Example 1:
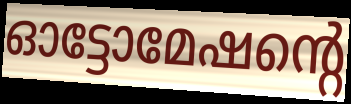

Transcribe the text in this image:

ഓട്ടോമേഷന്റെ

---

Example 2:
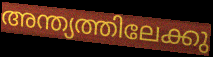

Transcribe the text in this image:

അന്ത്യത്തിലേക്കു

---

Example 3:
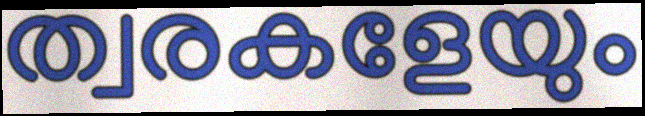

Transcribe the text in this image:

ത്വരകളേയും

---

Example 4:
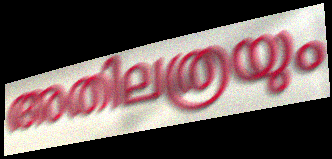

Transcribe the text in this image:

അതിലത്രയും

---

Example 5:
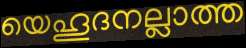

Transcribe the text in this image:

യെഹൂദനല്ലാത്ത